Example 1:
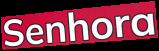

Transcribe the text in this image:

Senhora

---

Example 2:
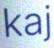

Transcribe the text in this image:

kaj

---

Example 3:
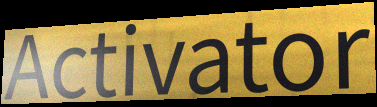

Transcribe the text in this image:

Activator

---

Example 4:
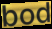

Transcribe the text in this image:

bod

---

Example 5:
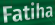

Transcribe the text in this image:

Fatiha